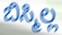
ಬಿಸ್ಮಿಲ್ಲ